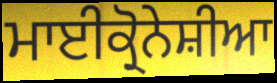
ਮਾਈਕ੍ਰੋਨੇਸ਼ੀਆ